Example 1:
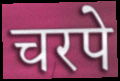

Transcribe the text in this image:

चरपे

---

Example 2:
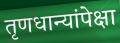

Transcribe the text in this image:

तृणधान्यांपेक्षा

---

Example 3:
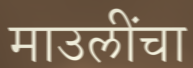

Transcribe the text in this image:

माउलींचा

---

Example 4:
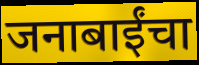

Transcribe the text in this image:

जनाबाईंचा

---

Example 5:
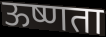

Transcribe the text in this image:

ऊष्णता